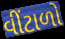
વીંટાળો